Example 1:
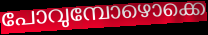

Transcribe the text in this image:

പോവുമ്പോഴൊക്കെ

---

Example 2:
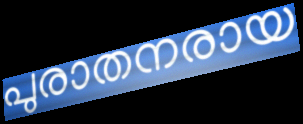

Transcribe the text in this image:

പുരാതനരായ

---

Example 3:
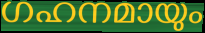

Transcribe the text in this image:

ഗഹനമായും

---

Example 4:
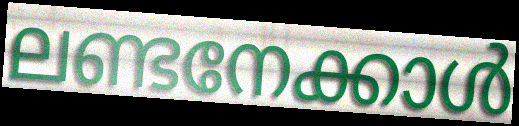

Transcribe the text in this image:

ലണ്ടനേക്കാൾ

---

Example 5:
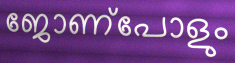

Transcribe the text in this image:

ജോണ്പോളും